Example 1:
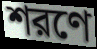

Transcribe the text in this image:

শরণে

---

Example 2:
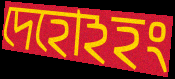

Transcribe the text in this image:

দেহোঽহং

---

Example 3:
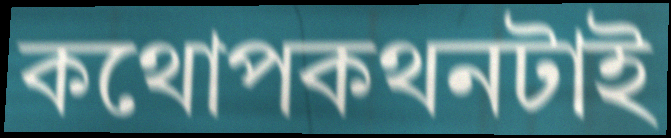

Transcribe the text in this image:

কথোপকথনটাই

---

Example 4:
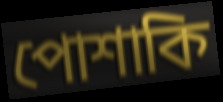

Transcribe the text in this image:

পোশাকি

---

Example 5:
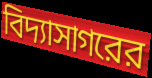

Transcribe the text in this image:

বিদ্যাসাগরের